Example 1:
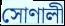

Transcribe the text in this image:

সোণালী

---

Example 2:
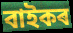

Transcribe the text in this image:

বাইকৰ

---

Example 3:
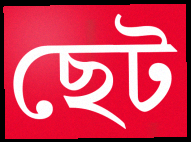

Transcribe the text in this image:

ছেট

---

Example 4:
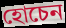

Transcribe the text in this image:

হোচেন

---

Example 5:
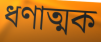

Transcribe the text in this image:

ধণাত্মক